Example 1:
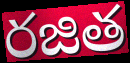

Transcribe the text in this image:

రజిత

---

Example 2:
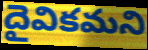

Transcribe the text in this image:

దైవికమని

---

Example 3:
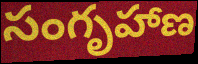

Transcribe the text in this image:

సంగృహాణ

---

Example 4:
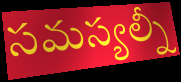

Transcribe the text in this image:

సమస్యల్నీ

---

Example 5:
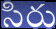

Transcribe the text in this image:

సిరు